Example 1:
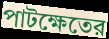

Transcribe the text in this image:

পাটক্ষেতের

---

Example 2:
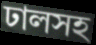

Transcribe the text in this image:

ঢালসহ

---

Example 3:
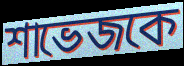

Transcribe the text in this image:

শাভেজকে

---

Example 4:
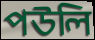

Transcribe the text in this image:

পউলি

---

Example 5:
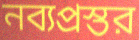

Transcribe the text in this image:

নব্যপ্রস্তর